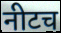
नीटच